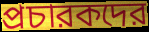
প্রচারকদের